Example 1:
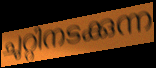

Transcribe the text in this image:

ചുറ്റിനടക്കുന്ന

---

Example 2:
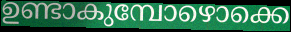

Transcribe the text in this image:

ഉണ്ടാകുമ്പോഴൊക്കെ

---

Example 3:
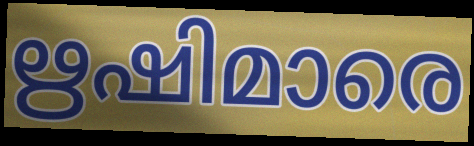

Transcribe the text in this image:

ഋഷിമാരെ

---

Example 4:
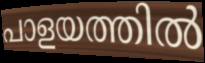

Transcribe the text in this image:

പാളയത്തിൽ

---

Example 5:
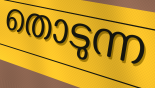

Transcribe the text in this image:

തൊടുന്ന